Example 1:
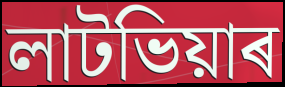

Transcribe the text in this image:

লাটভিয়াৰ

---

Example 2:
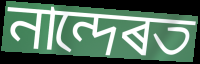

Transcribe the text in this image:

নান্দেৰত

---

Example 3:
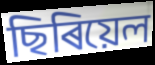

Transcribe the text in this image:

ছিৰিয়েল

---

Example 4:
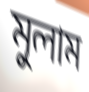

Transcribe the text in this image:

মুলাম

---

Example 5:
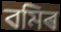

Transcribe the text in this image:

বমিৰ